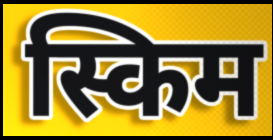
स्किम